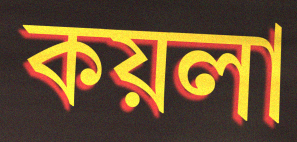
কয়লা